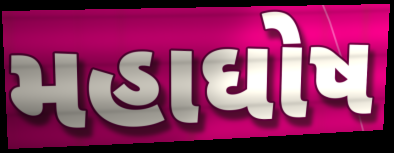
મહાઘોષ